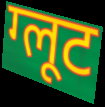
ग्लूट